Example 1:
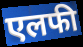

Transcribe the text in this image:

एलफी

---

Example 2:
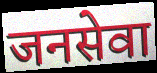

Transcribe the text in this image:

जनसेवा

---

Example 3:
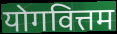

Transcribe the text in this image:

योगवित्तम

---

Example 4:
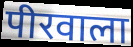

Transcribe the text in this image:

पीरवाला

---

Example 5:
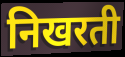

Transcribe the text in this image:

निखरती